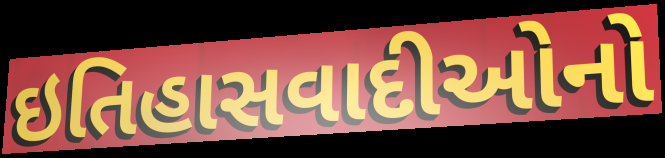
ઇતિહાસવાદીઓનો